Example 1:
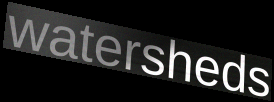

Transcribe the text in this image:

watersheds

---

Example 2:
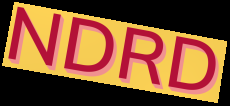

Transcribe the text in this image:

NDRD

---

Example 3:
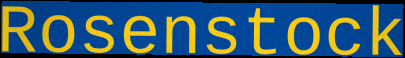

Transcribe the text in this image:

Rosenstock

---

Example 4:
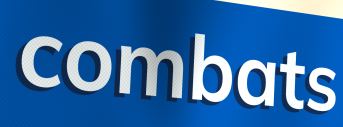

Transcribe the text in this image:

combats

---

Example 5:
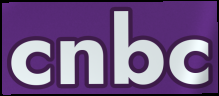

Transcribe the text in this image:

cnbc